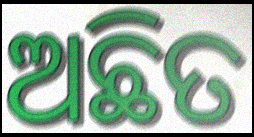
ଅଛିତ